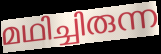
മഥിച്ചിരുന്ന